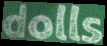
dolls